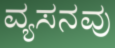
ವ್ಯಸನವು